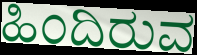
ಹಿಂದಿರುವ